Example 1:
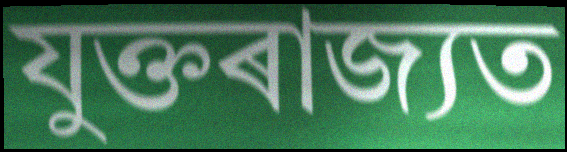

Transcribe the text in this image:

যুক্তৰাজ্যত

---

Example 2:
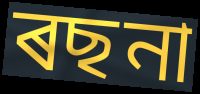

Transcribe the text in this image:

ৰছনা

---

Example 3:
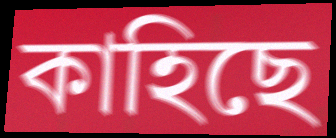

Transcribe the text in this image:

কাহিছে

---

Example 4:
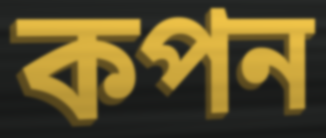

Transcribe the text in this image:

কপন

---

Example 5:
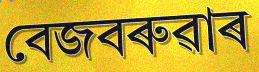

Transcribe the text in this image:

বেজবৰুৱাৰ